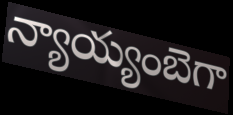
న్యాయ్యంబెగా